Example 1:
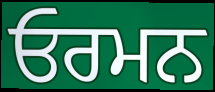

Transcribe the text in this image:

ਓਰਮਨ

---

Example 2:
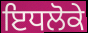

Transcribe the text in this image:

ਇਧਲੋਕੇ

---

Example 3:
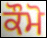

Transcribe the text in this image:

ਕੌਮੋ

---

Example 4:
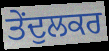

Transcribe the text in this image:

ਤੇਂਦੁਲਕਰ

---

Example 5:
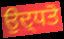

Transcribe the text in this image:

ਉਦ੍ਧਤੋ